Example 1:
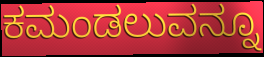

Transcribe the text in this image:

ಕಮಂಡಲುವನ್ನೂ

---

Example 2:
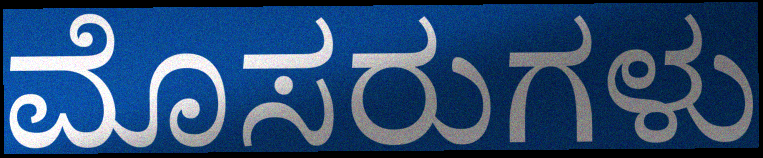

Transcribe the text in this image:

ಮೊಸರುಗಳು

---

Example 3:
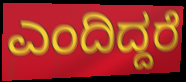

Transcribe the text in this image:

ಎಂದಿದ್ದರೆ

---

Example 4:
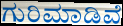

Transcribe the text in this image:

ಗುರಿಮಾಡಿವೆ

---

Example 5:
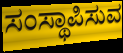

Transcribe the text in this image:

ಸಂಸ್ಥಾಪಿಸುವ